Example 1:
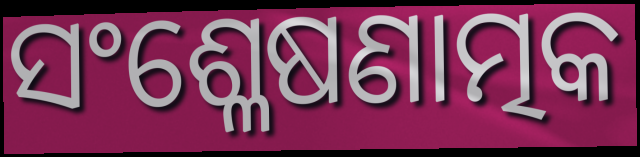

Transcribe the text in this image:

ସଂଶ୍ଳେଷଣାତ୍ମକ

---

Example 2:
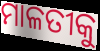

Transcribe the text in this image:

ମାଳତୀକୁ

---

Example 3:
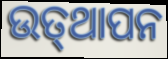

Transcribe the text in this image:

ଉତ୍‍ଥାପନ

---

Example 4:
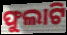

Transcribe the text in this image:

ଫୁଲାଟି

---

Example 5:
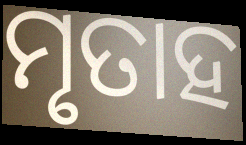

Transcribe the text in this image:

ମୃତାହ